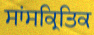
ਸਾਂਸਕ੍ਰਿਤਿਕ